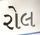
રોલ